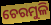
ଚେରମୁଳି